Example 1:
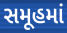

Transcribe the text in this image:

સમૂહમાં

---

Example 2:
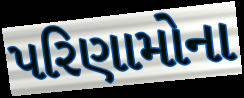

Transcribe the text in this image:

પરિણામોના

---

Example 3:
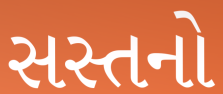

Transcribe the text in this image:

સસ્તનો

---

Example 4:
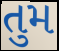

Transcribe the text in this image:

તુમ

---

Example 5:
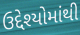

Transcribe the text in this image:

ઉદ્દેશ્યોમાંથી